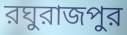
রঘুরাজপুর